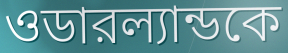
ওডারল্যান্ডকে